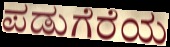
ಪಡುಗೆರೆಯ